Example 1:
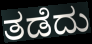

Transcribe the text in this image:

ತಡೆದು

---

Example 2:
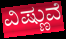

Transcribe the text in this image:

ವಿಷ್ಣುವೆ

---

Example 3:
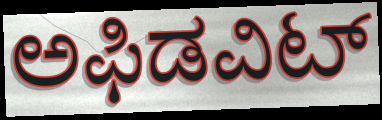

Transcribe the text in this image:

ಅಫಿಡವಿಟ್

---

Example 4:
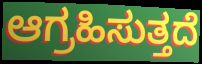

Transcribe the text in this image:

ಆಗ್ರಹಿಸುತ್ತದೆ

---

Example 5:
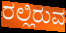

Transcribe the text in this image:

ರಲ್ಲಿರುವ